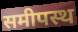
समीपस्थ